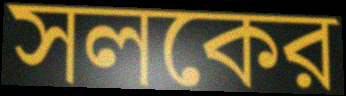
সলকের